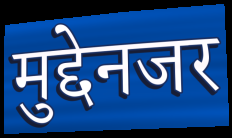
मुद्देनजर